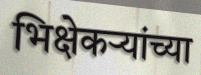
भिक्षेकऱ्यांच्या